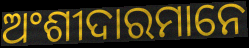
ଅଂଶୀଦାରମାନେ